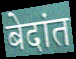
बेदांत